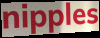
nipples